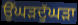
ਉੱਘੜਦੁੱਘੜਾ